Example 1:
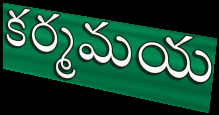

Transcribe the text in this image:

కర్మమయ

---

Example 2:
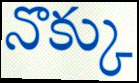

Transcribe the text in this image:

నొక్కు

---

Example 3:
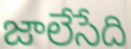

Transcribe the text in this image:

జాలేసేది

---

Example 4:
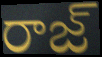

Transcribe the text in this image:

రాజ్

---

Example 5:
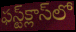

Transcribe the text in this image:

ఫస్ట్‌క్లాస్‌లో